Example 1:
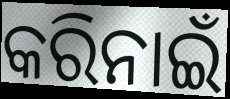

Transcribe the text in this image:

କରିନାଇଁ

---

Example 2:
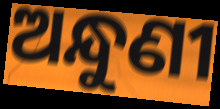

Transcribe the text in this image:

ଅନ୍ଧୁଣୀ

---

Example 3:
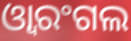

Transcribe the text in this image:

ଓ୍ୱାରଂଗଲ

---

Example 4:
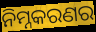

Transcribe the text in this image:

ନିମ୍ନକରଣର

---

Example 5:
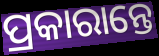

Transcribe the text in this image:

ପ୍ରକାରାନ୍ତେ